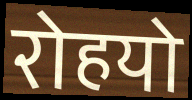
रोहयो